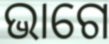
ଭାଗେ